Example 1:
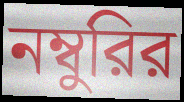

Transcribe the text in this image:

নম্বুরির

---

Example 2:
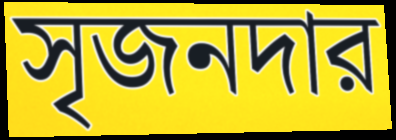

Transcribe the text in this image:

সৃজনদার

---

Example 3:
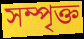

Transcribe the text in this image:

সম্পৃক্ত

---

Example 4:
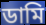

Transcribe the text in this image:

ডামি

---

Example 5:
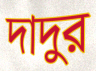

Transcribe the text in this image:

দাদুর